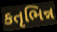
કતૃભિન્ન